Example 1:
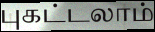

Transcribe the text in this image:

புகட்டலாம்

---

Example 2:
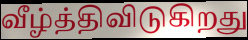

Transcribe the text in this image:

வீழ்த்திவிடுகிறது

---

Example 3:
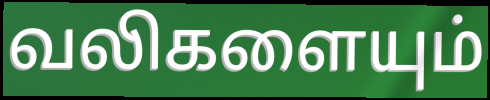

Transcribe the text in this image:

வலிகளையும்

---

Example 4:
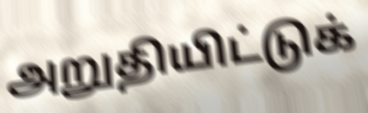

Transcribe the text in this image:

அறுதியிட்டுக்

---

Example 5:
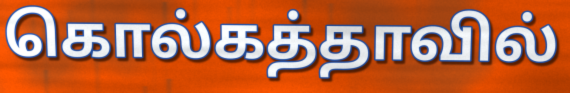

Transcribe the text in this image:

கொல்கத்தாவில்